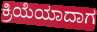
ಕ್ರಿಯೆಯಾದಾಗ